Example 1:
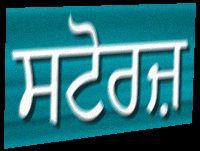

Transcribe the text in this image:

ਸਟੋਰਜ਼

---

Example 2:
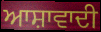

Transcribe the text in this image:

ਆਸ਼ਾਵਾਦੀ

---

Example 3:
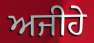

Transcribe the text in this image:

ਅਜੀਹੇ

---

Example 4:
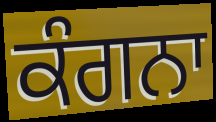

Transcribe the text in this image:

ਕੰਗਨਾ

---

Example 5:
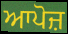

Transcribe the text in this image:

ਆਪੋਜ਼